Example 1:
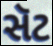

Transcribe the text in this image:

સૅટ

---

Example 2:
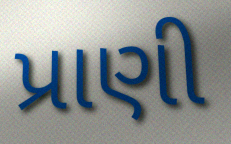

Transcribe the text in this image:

પ્રાણી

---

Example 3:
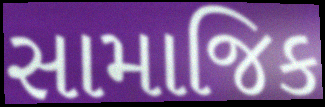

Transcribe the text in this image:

સામાજિક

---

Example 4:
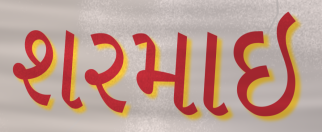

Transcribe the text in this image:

શરમાઇ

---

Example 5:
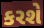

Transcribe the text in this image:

કરશે